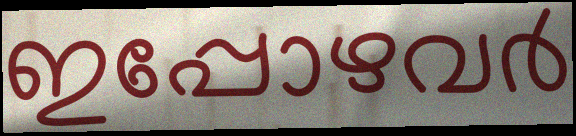
ഇപ്പോഴവർ